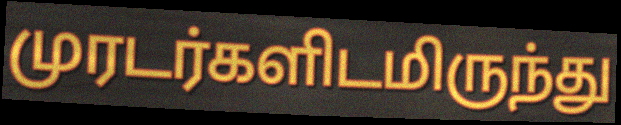
முரடர்களிடமிருந்து